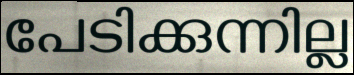
പേടിക്കുന്നില്ല